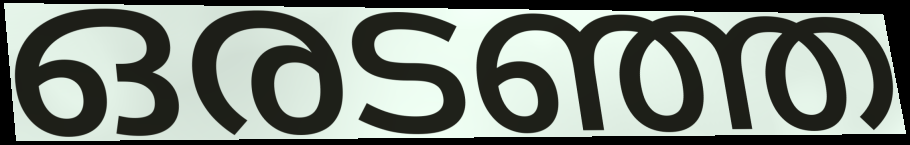
ഒരടഞ്ഞ